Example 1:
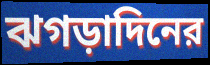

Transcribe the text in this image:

ঝগড়াদিনের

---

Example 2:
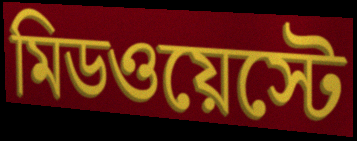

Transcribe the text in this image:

মিডওয়েস্টে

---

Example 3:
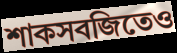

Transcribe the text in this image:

শাকসবজিতেও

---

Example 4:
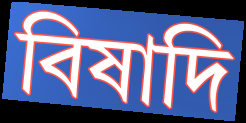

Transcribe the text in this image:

বিষাদি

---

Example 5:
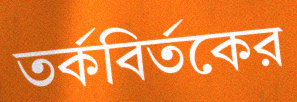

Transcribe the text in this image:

তর্কবির্তকের